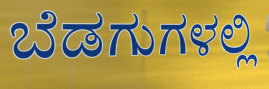
ಬೆಡಗುಗಳಲ್ಲಿ